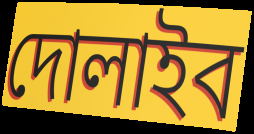
দোলাইব